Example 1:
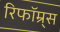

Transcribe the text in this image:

रिफॉम्र्स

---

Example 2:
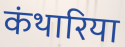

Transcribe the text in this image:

कंथारिया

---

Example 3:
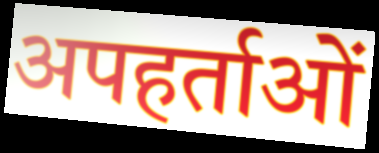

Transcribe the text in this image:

अपहर्ताओं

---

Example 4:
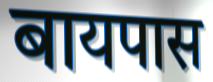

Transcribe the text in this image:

बायपास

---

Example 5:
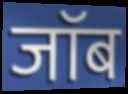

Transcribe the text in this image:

जॉब